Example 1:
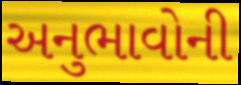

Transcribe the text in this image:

અનુભાવોની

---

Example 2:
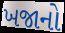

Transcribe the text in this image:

ખજાનો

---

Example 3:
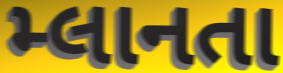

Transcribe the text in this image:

મ્લાનતા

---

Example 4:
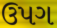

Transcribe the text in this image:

ઉપગ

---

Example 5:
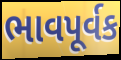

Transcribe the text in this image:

ભાવપૂર્વક